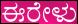
ಈರೇಳು